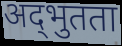
अद्‌भुतता